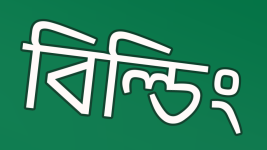
বিল্ডিং